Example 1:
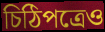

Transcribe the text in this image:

চিঠিপত্রেও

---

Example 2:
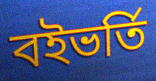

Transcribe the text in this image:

বইভর্তি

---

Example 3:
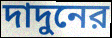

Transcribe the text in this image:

দাদুনের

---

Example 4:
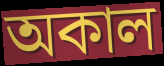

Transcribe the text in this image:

অকাল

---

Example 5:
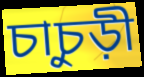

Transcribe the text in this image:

চাচুড়ী